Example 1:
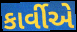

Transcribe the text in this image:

કાર્વીએ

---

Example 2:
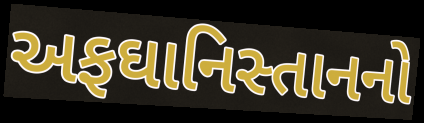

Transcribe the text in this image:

અફઘાનિસ્તાનનો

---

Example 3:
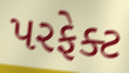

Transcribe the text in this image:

પરફેક્ટ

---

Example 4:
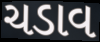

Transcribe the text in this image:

ચડાવ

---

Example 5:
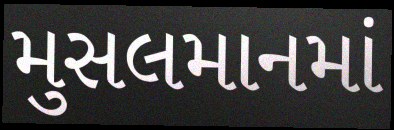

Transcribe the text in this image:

મુસલમાનમાં